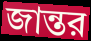
জান্তর